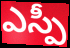
ఎస్పీ